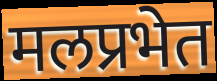
मलप्रभेत